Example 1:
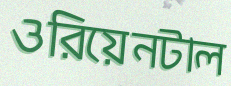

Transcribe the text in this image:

ওরিয়েনটাল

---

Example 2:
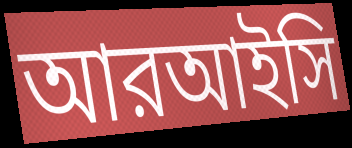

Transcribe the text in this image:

আরআইসি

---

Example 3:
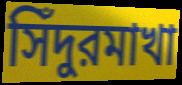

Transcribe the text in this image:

সিঁদুরমাখা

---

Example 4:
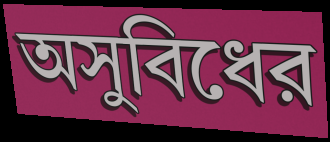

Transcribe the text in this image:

অসুবিধের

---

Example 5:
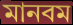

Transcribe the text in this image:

মানবম